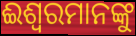
ଈଶ୍ୱରମାନଙ୍କୁ